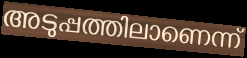
അടുപ്പത്തിലാണെന്ന്